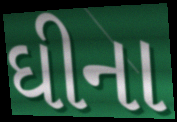
ઘીના